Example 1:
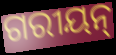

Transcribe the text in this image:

ଗରୀୟନ୍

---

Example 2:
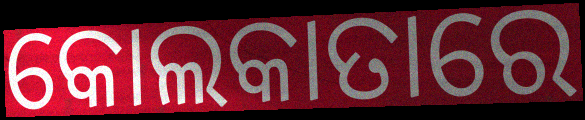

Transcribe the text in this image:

କୋଲକାତାରେ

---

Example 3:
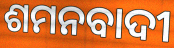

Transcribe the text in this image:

ଶମନବାଦୀ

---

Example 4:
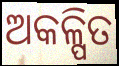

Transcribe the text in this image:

ଅକଳ୍ପିତ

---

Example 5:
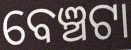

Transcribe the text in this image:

ବେଞ୍ଚଟା